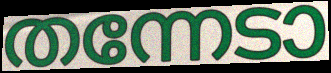
തന്നേടാ